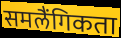
समलैंगिकता